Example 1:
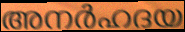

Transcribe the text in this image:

അനർഹദയ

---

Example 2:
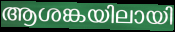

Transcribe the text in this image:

ആശങ്കയിലായി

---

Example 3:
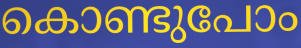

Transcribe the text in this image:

കൊണ്ടുപോം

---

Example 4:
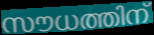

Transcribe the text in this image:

സൗധത്തിന്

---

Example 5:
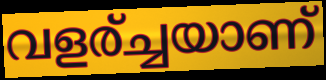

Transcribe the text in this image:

വളര്ച്ചയാണ്